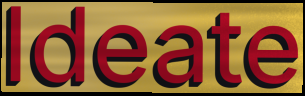
Ideate